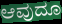
ಆವುದೂ